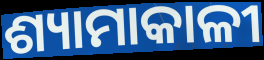
ଶ୍ୟାମାକାଳୀ